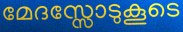
മേദസ്സോടുകൂടെ